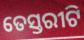
ତେସ୍ତରୀଟି